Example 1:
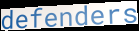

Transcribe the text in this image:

defenders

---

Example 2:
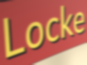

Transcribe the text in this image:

Locke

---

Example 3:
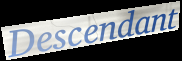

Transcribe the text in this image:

Descendant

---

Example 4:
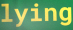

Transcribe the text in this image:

lying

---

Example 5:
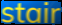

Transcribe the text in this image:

stair